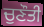
ਚੁਣੌਤੀ